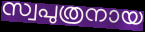
സ്വപുത്രനായ